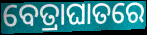
ବେତ୍ରାଘାତରେ